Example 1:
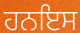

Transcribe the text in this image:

ਹਨਇਸ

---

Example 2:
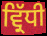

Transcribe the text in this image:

ਵ੍ਰਿੱਧੀ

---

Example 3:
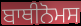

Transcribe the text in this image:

ਬਾਥੀਨੋਮਸ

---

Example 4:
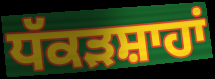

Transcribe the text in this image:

ਧੱਕੜਸ਼ਾਹਾਂ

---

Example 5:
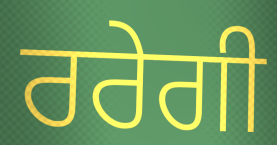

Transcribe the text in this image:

ਰਰੇਗੀ